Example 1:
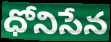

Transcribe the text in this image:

ధోనిసేన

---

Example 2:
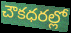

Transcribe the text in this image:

చౌకధరల్లో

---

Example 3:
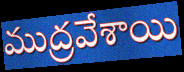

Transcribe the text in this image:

ముద్రవేశాయి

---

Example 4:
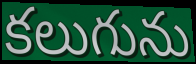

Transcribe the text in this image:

కలుగును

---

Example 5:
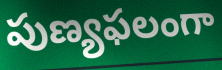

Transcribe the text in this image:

పుణ్యఫలంగా